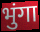
भुंगा